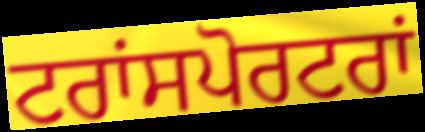
ਟਰਾਂਸਪੋਰਟਰਾਂ